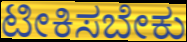
ಟೀಕಿಸಬೇಕು